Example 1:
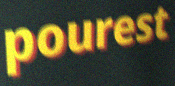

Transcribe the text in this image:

pourest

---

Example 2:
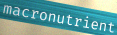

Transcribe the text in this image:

macronutrient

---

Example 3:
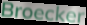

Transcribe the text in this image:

Broecker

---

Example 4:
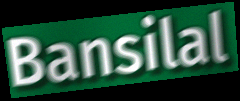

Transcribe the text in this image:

Bansilal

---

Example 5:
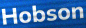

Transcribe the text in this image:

Hobson